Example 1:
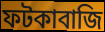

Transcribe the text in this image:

ফটকাবাজি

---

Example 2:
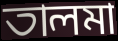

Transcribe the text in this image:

তালমা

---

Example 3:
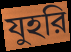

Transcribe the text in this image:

যুহরি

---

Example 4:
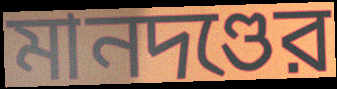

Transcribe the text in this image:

মানদণ্ডের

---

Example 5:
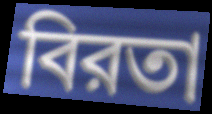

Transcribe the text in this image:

বিরতা